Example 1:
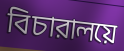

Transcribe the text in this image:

বিচারালয়ে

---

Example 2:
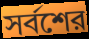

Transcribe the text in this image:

সর্বশের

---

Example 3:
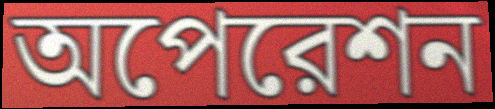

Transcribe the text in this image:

অপেরেশন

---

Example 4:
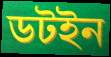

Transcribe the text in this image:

ডটইন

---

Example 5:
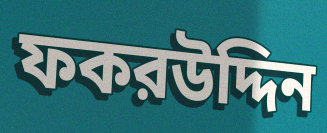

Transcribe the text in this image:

ফকরউদ্দিন